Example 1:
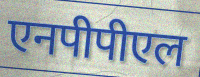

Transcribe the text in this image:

एनपीपीएल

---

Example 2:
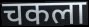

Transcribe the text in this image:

चकला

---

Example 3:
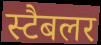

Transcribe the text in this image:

स्टैबलर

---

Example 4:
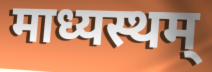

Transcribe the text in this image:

माध्यस्थम्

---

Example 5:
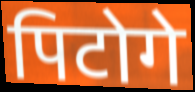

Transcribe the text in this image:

पिटोगे